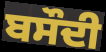
ਬਸੌਦੀ